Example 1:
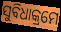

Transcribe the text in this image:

ସୁବିଧାକ୍ରମେ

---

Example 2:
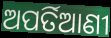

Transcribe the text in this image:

ଅପର୍ତିଆଣୀ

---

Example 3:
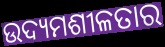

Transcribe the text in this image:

ଉଦ୍ୟମଶୀଳତାର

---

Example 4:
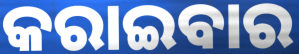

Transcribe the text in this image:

କରାଇବାର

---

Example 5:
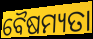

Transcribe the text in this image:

ବୈଷମ୍ୟତା